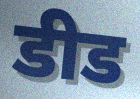
डीड